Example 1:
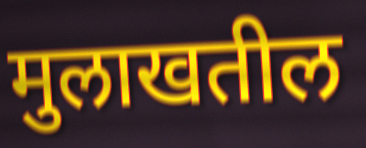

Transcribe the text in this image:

मुलाखतील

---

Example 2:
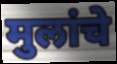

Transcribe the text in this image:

मुलांचे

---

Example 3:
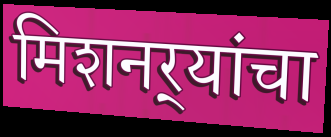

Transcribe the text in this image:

मिशनर्यांचा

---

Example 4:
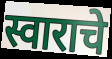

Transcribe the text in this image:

स्वाराचे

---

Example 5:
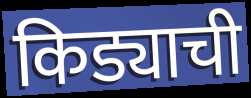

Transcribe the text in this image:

किड्याची